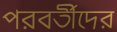
পরবর্তীদের